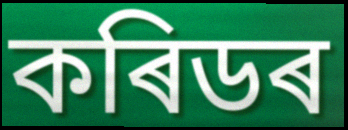
কৰিডৰ